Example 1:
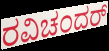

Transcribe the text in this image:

ರವಿಚಂದರ್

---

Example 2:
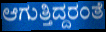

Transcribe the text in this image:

ಆಗುತ್ತಿದ್ದರಂತೆ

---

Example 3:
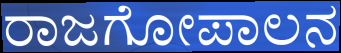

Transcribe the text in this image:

ರಾಜಗೋಪಾಲನ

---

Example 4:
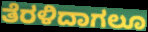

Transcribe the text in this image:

ತೆರಳಿದಾಗಲೂ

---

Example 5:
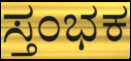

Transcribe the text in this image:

ಸ್ತಂಭಕ